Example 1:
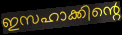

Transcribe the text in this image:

ഇസഹാക്കിന്റെ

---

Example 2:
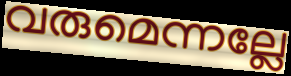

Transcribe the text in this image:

വരുമെന്നല്ലേ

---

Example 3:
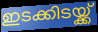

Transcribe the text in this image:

ഇടക്കിടയ്ക്ക്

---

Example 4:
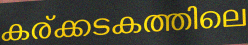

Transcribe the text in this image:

കര്ക്കടകത്തിലെ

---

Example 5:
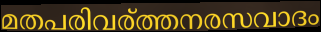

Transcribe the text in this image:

മതപരിവര്ത്തനരസവാദം